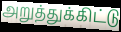
அறுத்துக்கிட்டு